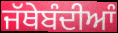
ਜੱਥੇਬੰਦੀਆੰ